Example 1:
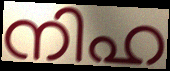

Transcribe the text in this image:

നിഹ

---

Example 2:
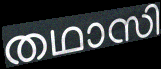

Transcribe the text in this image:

തഥാസി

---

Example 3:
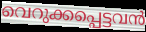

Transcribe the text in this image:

വെറുക്കപ്പെട്ടവൻ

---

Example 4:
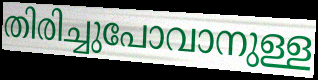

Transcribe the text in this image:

തിരിച്ചുപോവാനുള്ള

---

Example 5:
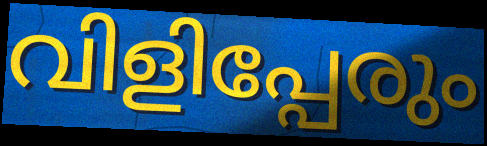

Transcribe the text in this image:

വിളിപ്പേരും